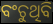
ବଂଚୁଥିବି